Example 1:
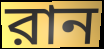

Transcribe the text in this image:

রান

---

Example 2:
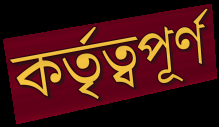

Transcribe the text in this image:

কর্তৃত্বপূর্ণ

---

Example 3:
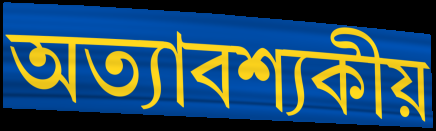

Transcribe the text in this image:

অত্যাবশ্যকীয়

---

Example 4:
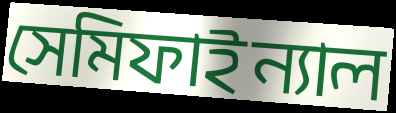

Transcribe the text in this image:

সেমিফাইন্যাল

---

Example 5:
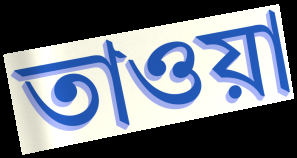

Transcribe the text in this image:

তাওয়া